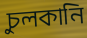
চুলকানি